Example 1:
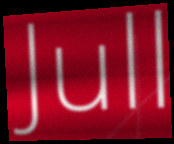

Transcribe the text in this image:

Jull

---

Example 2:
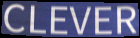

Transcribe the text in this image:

CLEVER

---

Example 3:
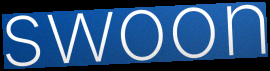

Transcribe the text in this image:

swoon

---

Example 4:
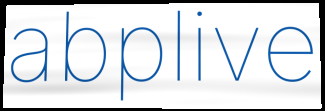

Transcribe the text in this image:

abplive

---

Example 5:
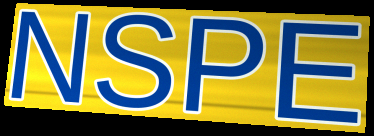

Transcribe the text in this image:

NSPE